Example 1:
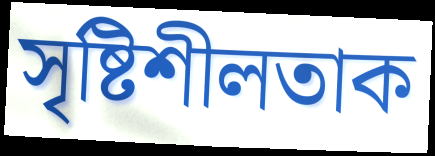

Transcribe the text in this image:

সৃষ্টিশীলতাক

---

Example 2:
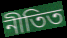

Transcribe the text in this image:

নীতিত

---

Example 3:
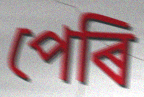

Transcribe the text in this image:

পেৰি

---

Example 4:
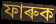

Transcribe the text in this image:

ফাৰুক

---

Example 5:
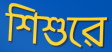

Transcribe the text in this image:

শিশুৱে